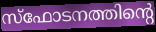
സ്ഫോടനത്തിന്റെ